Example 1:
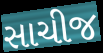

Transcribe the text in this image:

સાચીજ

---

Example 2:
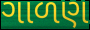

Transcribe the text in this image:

ગાળણ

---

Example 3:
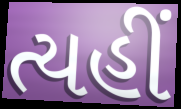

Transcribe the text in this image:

ત્યહીં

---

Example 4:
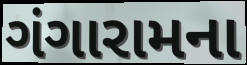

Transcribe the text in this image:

ગંગારામના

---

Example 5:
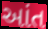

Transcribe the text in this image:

આંત